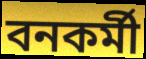
বনকর্মী